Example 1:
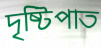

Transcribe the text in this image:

দৃষ্টিপাত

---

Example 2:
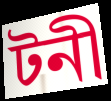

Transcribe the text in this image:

টনী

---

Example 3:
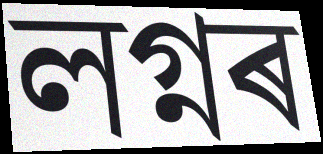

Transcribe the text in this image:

লগ্নৰ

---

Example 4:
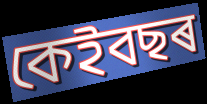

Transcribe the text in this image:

কেইবছৰ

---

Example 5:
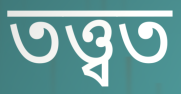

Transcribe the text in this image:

তত্ত্বত